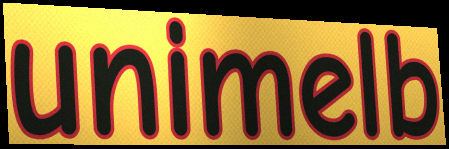
unimelb